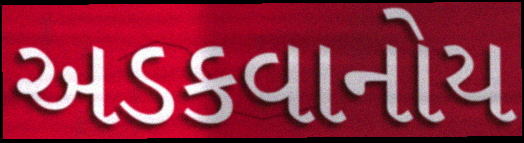
અડકવાનોય